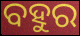
ବହୁର